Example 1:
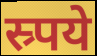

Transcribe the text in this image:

स्र्पये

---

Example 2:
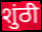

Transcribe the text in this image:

शुंठी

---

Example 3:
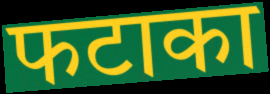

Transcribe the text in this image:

फटाका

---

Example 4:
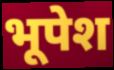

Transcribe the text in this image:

भूपेश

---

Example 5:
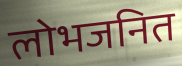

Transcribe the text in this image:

लोभजनित